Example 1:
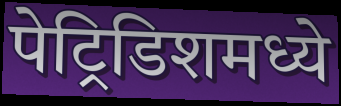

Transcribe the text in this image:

पेट्रिडिशमध्ये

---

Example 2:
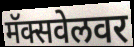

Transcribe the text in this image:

मॅक्सवेलवर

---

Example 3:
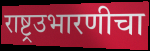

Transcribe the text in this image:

राष्ट्रउभारणीचा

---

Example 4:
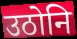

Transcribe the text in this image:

उठोनि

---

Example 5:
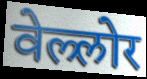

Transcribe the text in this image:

वेल्लोर